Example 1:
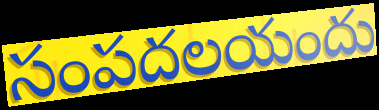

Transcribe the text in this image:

సంపదలయందు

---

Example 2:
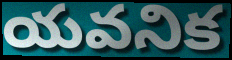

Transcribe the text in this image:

యవనిక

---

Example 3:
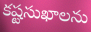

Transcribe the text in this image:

కష్టసుఖాలను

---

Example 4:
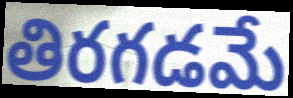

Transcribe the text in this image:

తిరగడమే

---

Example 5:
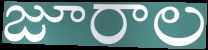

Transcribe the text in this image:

జూరాల